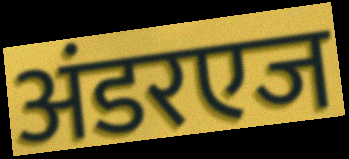
अंडरएज